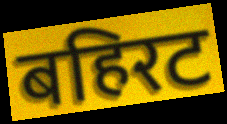
बहिरट